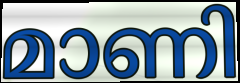
മാണി